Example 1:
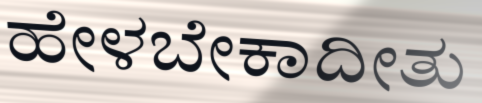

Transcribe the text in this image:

ಹೇಳಬೇಕಾದೀತು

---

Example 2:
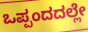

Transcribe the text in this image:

ಒಪ್ಪಂದದಲ್ಲೇ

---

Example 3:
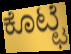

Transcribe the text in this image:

ಕೊಟ್ಟೆ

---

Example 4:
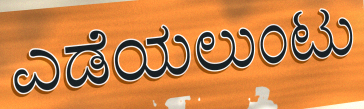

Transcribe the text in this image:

ಎಡೆಯಲುಂಟು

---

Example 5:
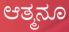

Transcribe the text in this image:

ಆತ್ಮನೂ